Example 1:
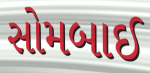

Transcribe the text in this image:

સોમબાઈ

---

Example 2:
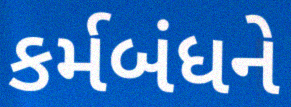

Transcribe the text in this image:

કર્મબંધને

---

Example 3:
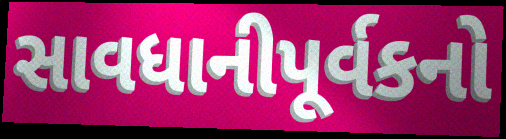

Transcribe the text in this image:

સાવધાનીપૂર્વકનો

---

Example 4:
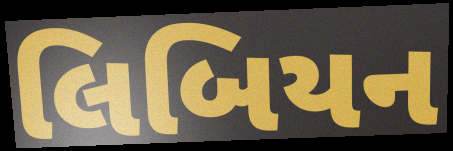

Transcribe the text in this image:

લિબિયન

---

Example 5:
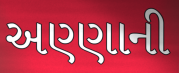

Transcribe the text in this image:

અણ્ણાની